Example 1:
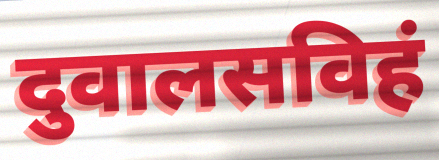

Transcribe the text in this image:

दुवालसविहं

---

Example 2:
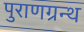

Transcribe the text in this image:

पुराणग्रन्थ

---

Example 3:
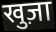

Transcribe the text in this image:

खुज़ा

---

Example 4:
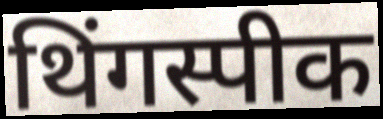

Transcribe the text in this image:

थिंगस्पीक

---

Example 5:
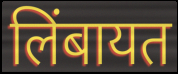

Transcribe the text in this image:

लिंबायत